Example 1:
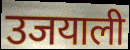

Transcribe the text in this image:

उजयाली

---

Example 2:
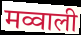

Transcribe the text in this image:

मव्वाली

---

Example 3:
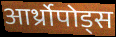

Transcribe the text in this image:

आर्थ्रोपोड्स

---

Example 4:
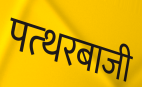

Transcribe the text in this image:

पत्‍थरबाजी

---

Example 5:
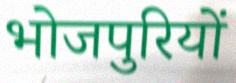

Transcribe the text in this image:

भोजपुरियों